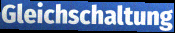
Gleichschaltung